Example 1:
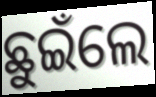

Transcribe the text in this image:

ଛୁଇଁଲେ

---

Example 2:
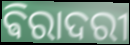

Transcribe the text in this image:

ଵିରାଦରୀ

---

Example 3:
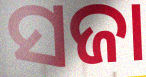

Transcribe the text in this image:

ସଜା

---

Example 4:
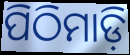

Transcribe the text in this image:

ପିଠିମାଡ଼ି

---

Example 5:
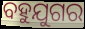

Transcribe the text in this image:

ବହୁଯୁଗର